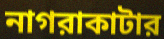
নাগরাকাটার